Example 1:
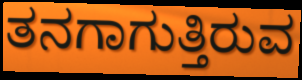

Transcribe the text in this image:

ತನಗಾಗುತ್ತಿರುವ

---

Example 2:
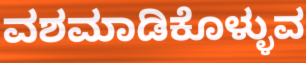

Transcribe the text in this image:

ವಶಮಾಡಿಕೊಳ್ಳುವ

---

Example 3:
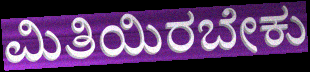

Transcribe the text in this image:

ಮಿತಿಯಿರಬೇಕು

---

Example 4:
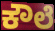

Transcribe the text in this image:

ಕೌಲೆ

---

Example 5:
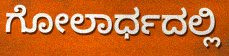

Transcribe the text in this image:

ಗೋಲಾರ್ಧದಲ್ಲಿ